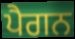
ਪੈਗਨ